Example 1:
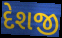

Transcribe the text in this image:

દેશજી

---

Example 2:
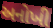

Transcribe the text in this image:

અનોખી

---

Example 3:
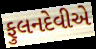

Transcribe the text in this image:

ફુલનદેવીએ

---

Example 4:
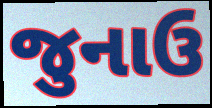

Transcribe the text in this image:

જુનાઉ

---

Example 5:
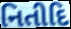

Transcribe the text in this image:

નિતીદિ